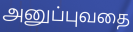
அனுப்புவதை